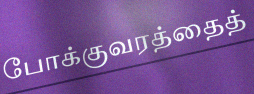
போக்குவரத்தைத்